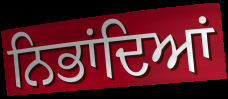
ਨਿਭਾਂਦਿਆਂ